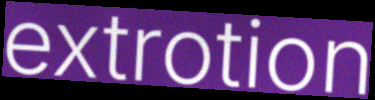
extrotion